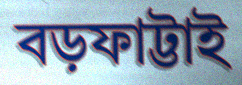
বড়ফাট্টাই